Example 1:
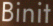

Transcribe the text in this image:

Binit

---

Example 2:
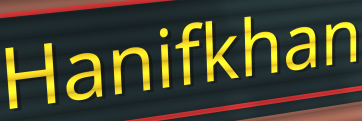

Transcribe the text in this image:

Hanifkhan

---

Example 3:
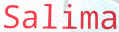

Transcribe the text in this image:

Salima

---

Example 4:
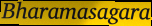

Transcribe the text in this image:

Bharamasagara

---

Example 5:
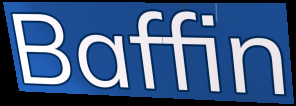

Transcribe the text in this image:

Baffin